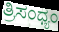
ತ್ರಿಸಂಧ್ಯಂ